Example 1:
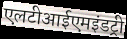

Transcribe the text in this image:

एलटीआईएमइंडट्री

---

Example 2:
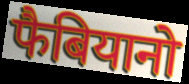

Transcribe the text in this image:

फैबियानो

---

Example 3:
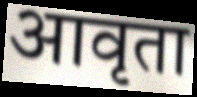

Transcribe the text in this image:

आवृता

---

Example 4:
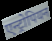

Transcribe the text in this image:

एन्ट्रोपियन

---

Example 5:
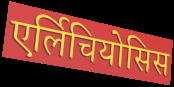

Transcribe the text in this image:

एर्लिचियोसिस